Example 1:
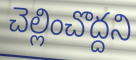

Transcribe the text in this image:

చెల్లించొద్దని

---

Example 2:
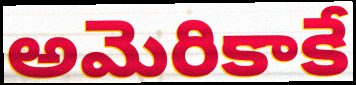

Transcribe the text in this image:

అమెరికాకే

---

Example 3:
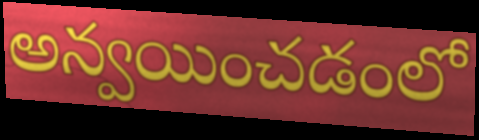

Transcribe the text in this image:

అన్వయించడంలో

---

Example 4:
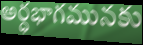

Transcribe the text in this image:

అర్ధభాగమునకు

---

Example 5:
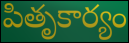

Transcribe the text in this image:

పితృకార్యం